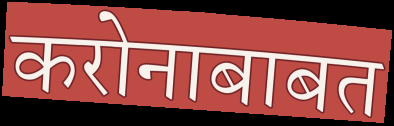
करोनाबाबत